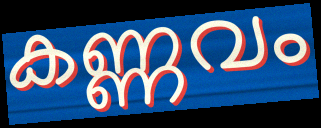
കണ്ണവം